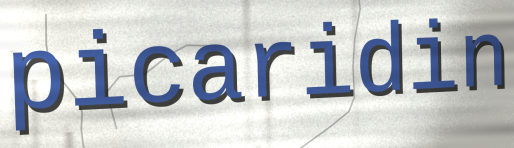
picaridin